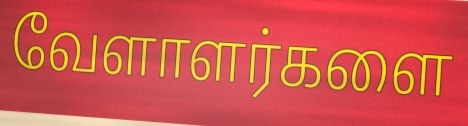
வேளாளர்களை